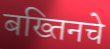
बख्तिनचे